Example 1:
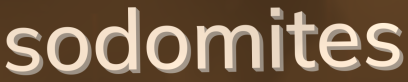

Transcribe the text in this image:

sodomites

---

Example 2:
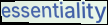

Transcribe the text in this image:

essentiality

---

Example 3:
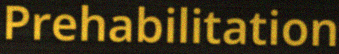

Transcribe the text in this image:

Prehabilitation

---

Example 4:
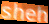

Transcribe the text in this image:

sheh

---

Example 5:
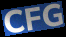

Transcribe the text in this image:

CFG